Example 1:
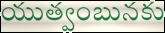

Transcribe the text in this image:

యుత్వంబునకు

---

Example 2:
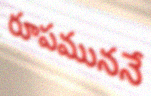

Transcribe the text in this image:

రూపముననే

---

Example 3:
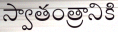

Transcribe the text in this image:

స్వాతంత్రానికి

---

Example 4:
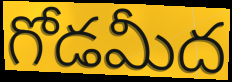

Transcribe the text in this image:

గోడమీద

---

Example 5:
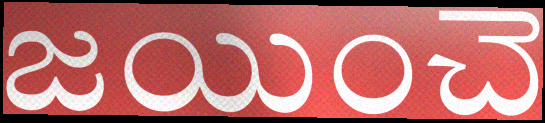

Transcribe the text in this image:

జయించె